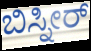
ಬಿಸ್ನೀರ್